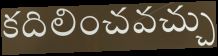
కదిలించవచ్చు